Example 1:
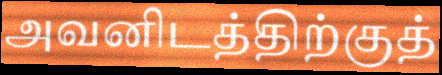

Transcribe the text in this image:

அவனிடத்திற்குத்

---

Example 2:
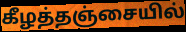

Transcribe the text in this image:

கீழத்தஞ்சையில்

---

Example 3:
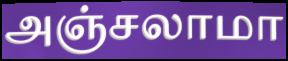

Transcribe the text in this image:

அஞ்சலாமா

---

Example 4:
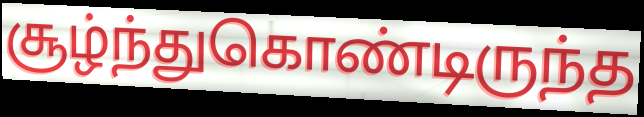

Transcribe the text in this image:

சூழ்ந்துகொண்டிருந்த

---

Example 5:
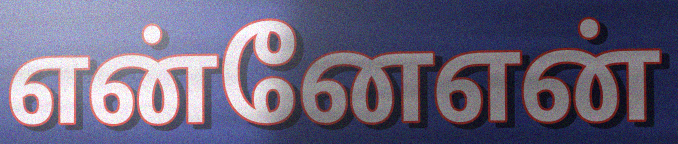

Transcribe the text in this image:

என்னேஎன்